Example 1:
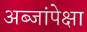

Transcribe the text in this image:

अब्जांपेक्षा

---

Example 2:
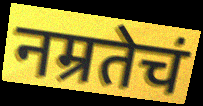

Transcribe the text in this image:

नम्रतेचं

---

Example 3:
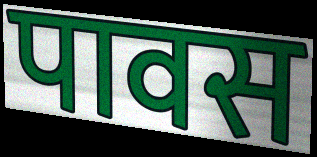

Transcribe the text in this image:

पावस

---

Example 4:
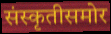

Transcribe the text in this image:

संस्कृतीसमोर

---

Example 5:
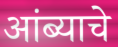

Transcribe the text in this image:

आंब्याचे